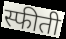
स्फीती